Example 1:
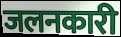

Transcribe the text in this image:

जलनकारी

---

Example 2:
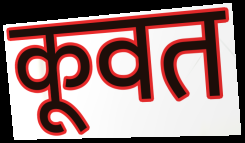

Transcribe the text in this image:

कूवत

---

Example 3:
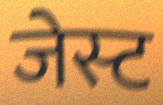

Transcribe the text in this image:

जेस्‍ट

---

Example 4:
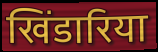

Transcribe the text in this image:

खिंडारिया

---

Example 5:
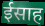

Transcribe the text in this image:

ईसाह